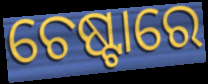
ଚେଷ୍ଟାରେ